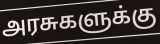
அரசுகளுக்கு